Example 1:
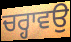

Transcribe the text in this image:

ਚਰ੍ਹਾਵਉ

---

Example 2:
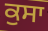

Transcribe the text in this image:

ਕੁਸਾ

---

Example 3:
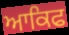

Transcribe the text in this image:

ਆਕਿਫ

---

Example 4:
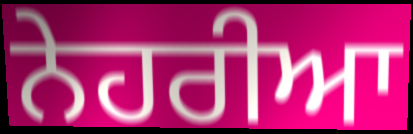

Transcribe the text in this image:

ਨੇਹਰੀਆ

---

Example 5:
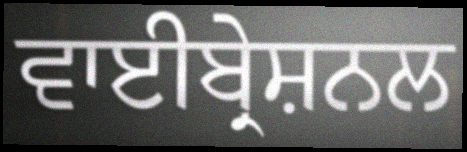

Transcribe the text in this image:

ਵਾਈਬ੍ਰੇਸ਼ਨਲ